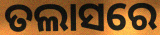
ତଲାସରେ